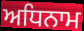
ਅਧਿਨਾਮ